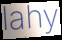
lahy